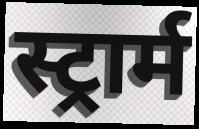
स्ट्रार्म